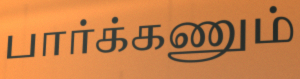
பார்க்கணும்